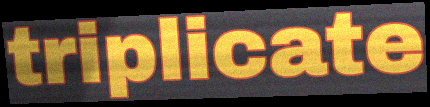
triplicate